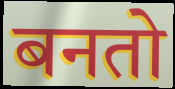
बनतो